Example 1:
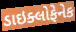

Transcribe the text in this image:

ડાઇક્લોફેનેક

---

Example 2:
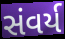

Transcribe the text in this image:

સંવર્ય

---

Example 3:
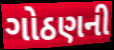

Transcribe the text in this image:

ગોઠણની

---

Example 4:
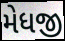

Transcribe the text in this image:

મેધજી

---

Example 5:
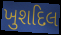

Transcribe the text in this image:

ખુશદિલ